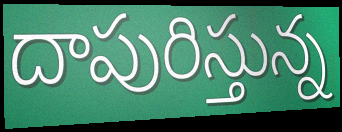
దాపురిస్తున్న